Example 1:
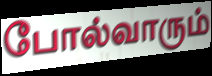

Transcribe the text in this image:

போல்வாரும்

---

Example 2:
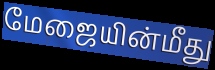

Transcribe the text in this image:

மேஜையின்மீது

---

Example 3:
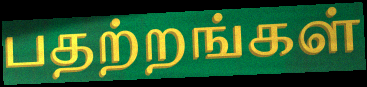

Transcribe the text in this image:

பதற்றங்கள்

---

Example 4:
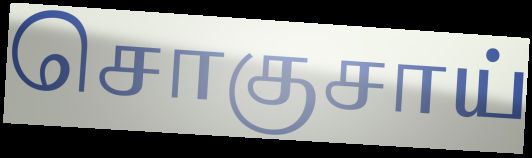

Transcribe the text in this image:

சொகுசாய்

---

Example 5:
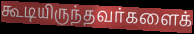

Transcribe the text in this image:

கூடியிருந்தவர்களைக்